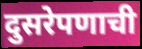
दुसरेपणाची